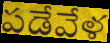
పడేవేళ